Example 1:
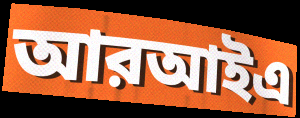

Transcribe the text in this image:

আরআইএ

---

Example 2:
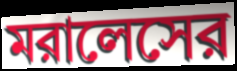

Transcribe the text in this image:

মরালেসের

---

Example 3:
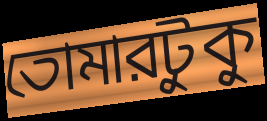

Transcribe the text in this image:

তোমারটুকু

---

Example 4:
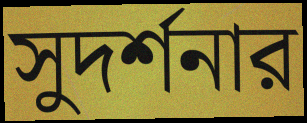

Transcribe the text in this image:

সুদর্শনার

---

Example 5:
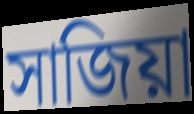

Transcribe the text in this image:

সাজিয়া